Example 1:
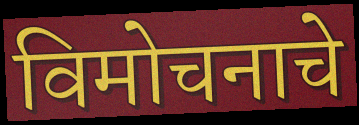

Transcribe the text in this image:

विमोचनाचे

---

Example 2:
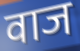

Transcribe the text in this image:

वाज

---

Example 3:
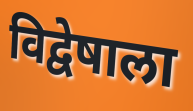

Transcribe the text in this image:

विद्वेषाला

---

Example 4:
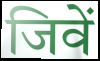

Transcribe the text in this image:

जिवें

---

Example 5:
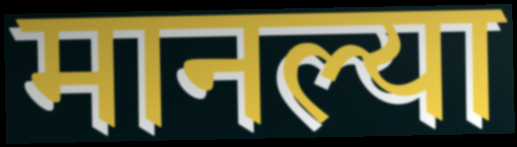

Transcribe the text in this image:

मानल्या